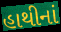
હાથીનાં